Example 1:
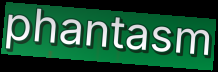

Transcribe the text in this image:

phantasm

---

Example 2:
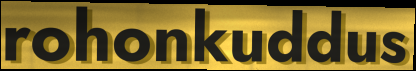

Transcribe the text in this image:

rohonkuddus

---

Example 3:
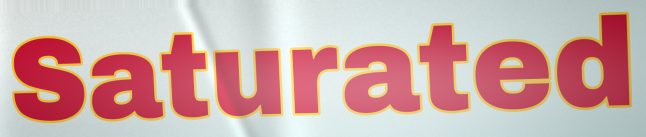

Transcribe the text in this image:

Saturated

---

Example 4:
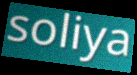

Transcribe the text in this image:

soliya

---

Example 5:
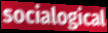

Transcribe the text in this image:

socialogical